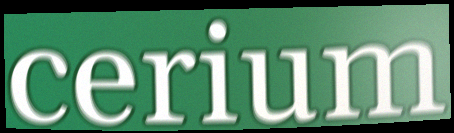
cerium